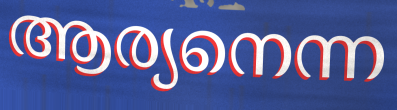
ആര്യനെന്ന